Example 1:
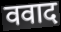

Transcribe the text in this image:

ववाद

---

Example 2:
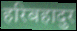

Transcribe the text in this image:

हरिबहादुर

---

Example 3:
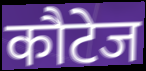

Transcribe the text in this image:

कौटेज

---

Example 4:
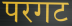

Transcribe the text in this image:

परगट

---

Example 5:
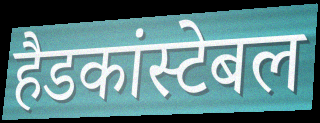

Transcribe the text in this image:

हैडकांस्टेबल